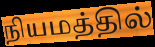
நியமத்தில்